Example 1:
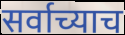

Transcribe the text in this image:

सर्वाच्याच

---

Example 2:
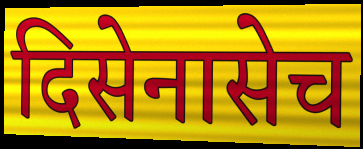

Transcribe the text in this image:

दिसेनासेच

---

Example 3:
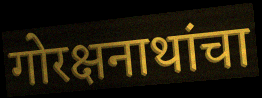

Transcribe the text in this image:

गोरक्षनाथांचा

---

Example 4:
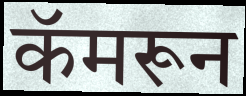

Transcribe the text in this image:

कॅमरून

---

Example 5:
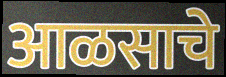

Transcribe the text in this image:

आळसाचे